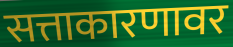
सत्ताकारणावर